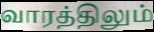
வாரத்திலும்